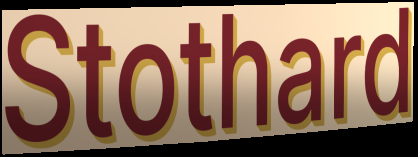
Stothard